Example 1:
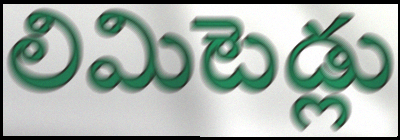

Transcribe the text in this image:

లిమిటెడ్లు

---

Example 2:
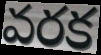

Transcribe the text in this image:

వరక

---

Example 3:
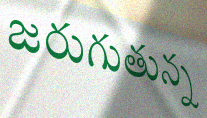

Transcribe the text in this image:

జరుగుతున్న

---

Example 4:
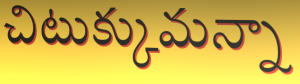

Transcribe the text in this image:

చిటుక్కుమన్నా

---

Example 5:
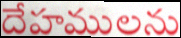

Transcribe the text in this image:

దేహములను